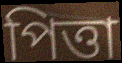
পিত্তা